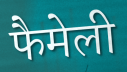
फैमेली